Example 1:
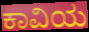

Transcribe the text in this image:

ಕಾವಿಯ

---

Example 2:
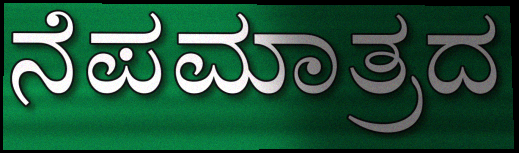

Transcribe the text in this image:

ನೆಪಮಾತ್ರದ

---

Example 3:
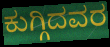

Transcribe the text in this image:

ಕುಗ್ಗಿದವರ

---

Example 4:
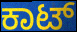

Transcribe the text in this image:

ಕಾಟ್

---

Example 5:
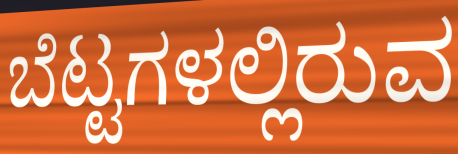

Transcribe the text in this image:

ಬೆಟ್ಟಗಳಲ್ಲಿರುವ